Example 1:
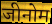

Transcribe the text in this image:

जीनोम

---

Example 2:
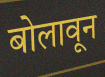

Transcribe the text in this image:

बोलावून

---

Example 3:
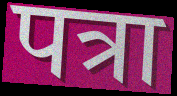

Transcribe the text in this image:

पत्रा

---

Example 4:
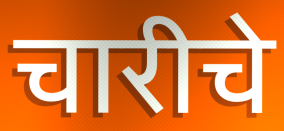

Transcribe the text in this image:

चारीचे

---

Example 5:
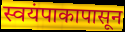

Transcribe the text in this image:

स्वयंपाकापासून